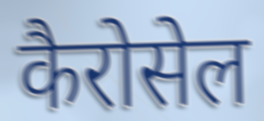
कैरोसेल